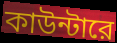
কাউন্টারে